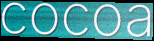
cocoa